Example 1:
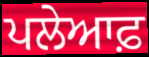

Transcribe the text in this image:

ਪਲੇਆਫ਼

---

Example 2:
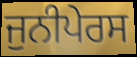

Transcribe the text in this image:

ਜੁਨੀਪੇਰਸ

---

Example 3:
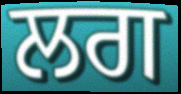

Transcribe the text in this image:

ਲਗ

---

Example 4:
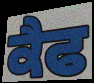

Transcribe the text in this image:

ਕੈਫ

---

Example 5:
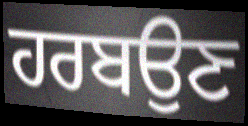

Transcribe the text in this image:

ਹਰਬਉਣ